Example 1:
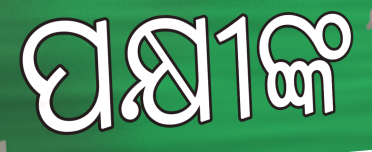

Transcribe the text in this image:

ପକ୍ଷୀଙ୍କ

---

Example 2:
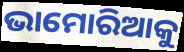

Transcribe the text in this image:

ଭାମୋରିଆକୁ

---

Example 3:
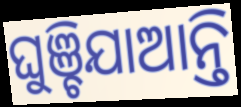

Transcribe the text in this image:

ଘୁଞ୍ଚିଯାଆନ୍ତି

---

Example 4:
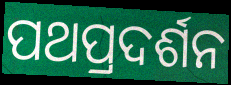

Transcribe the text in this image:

ପଥପ୍ରଦର୍ଶନ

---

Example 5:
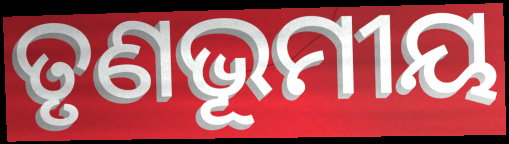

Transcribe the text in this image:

ତୃଣଭୂମୀୟ